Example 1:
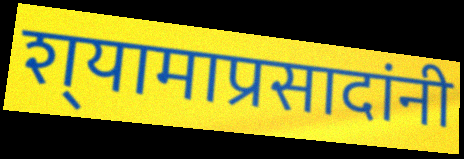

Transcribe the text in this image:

श्यामाप्रसादांनी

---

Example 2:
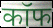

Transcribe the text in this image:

कॉफ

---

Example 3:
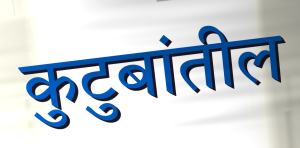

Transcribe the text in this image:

कुटुबांतील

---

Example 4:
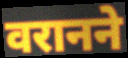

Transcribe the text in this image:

वरानने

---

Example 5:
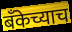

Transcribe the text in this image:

बँकेच्याच